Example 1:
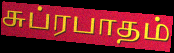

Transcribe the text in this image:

சுப்ரபாதம்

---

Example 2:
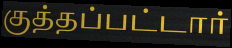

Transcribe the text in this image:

குத்தப்பட்டார்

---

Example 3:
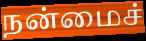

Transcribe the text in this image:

நன்மைச்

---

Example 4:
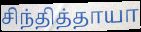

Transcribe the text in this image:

சிந்தித்தாயா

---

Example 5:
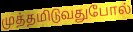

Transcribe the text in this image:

முத்தமிடுவதுபோல்